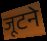
जूटने